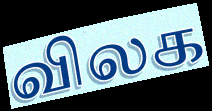
விலக